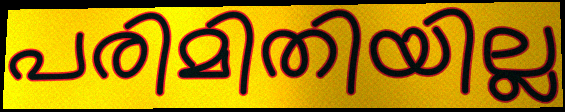
പരിമിതിയില്ല